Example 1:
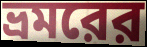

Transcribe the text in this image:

ভ্রমরের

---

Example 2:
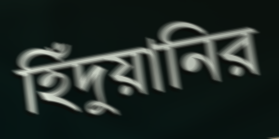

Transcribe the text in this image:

হিঁদুয়ানির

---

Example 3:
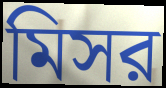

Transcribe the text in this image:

মিসর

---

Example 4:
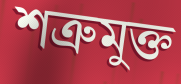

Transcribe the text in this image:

শত্রুমুক্ত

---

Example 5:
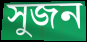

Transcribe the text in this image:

সুজন